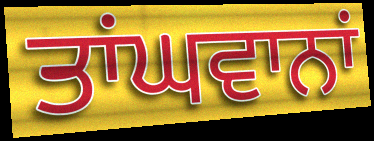
ਤਾਂਘਵਾਨਾਂ